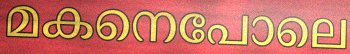
മകനെപോലെ